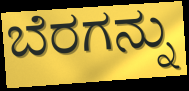
ಬೆರಗನ್ನು